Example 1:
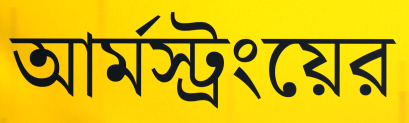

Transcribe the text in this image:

আর্মস্ট্রংয়ের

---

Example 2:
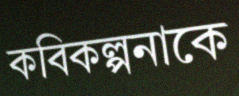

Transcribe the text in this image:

কবিকল্পনাকে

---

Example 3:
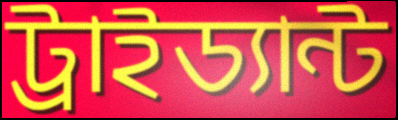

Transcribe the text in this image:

ট্রাইড্যান্ট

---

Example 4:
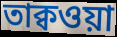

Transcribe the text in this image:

তাক্বওয়া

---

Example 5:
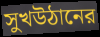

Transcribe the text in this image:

সুখউঠানের